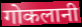
गोकलानी